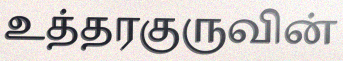
உத்தரகுருவின்